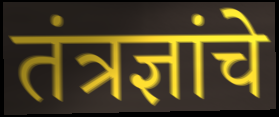
तंत्रज्ञांचे